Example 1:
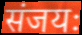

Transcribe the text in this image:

संजयः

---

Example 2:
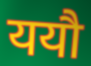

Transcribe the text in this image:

ययौ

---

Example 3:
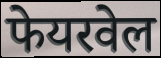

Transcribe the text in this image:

फेयरवेल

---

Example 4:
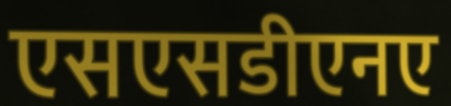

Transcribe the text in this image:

एसएसडीएनए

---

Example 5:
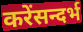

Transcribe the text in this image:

करेंसन्दर्भ